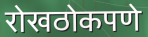
रोखठोकपणे